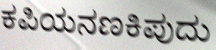
ಕಪಿಯನಣಕಿಪುದು